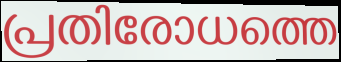
പ്രതിരോധത്തെ